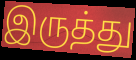
இருத்து